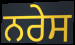
ਨਰੇਸ